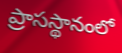
ప్రాసస్థానంలో